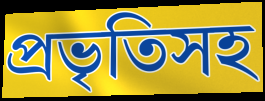
প্রভৃতিসহ